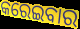
କରେଇବାର